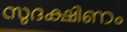
സുദക്ഷിണം